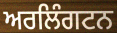
ਅਰਲਿੰਗਟਨ